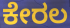
ಕೇರಲ